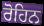
ਰੋਹਿਨ